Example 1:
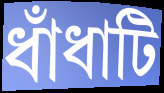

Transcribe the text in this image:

ধাঁধাটি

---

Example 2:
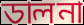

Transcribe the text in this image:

ডালনা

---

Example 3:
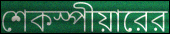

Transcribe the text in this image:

শেকস্পীয়ারের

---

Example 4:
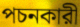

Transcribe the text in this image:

পচনকারী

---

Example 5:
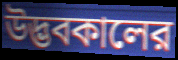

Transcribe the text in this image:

উদ্ভবকালের